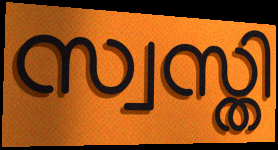
സ്വസ്തി